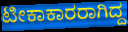
ಟೀಕಾಕಾರರಾಗಿದ್ದ